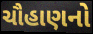
ચૌહાણનો